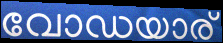
വോഡയാര്